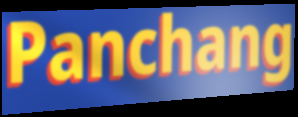
Panchang